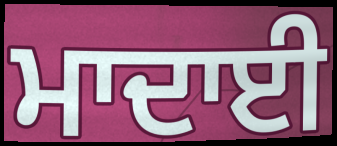
ਮਾਦਾਈ